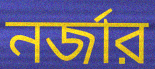
নর্জার